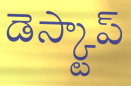
డెస్క్టాప్